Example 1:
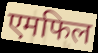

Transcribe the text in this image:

एमफिल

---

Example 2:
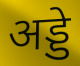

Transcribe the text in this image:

अड्डे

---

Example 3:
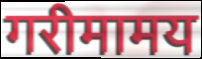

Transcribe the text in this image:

गरीमामय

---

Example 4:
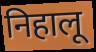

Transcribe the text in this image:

निहालू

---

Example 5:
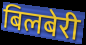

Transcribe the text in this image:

बिलबेरी